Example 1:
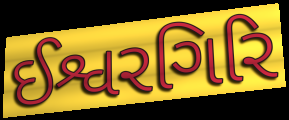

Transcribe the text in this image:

ઈશ્વરગિરિ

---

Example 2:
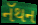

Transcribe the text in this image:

નૅથન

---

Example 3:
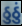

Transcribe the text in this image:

ઠુઠું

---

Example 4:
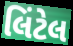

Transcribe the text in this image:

લિંટેલ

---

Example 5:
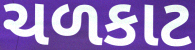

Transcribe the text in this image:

ચળકાટ